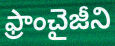
ఫ్రాంచైజీని